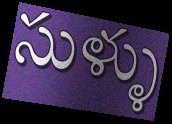
సుళ్ళు